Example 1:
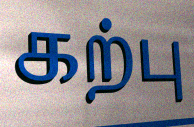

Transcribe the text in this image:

கற்பு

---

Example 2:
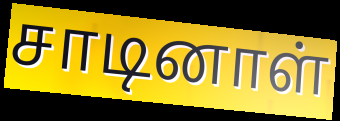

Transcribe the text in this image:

சாடினாள்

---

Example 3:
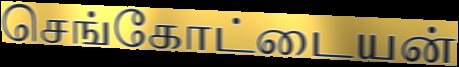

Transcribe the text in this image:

செங்கோட்டையன்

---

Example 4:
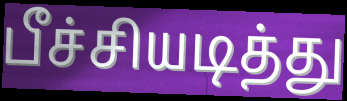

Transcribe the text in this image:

பீச்சியடித்து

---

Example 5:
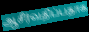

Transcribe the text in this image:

ஆசீர்வதிப்பதாக